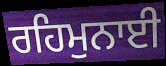
ਰਹਿਮੁਨਾਈ